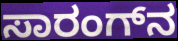
ಸಾರಂಗ್‌ನ